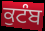
ਕੁਟੰਬ